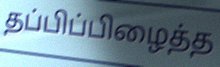
தப்பிப்பிழைத்த